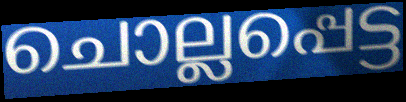
ചൊല്ലപ്പെട്ട